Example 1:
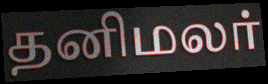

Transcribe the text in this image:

தனிமலர்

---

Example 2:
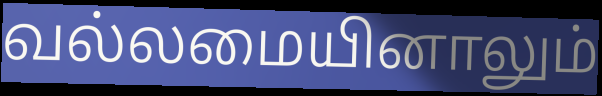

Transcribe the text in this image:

வல்லமையினாலும்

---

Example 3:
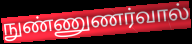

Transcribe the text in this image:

நுண்ணுணர்வால்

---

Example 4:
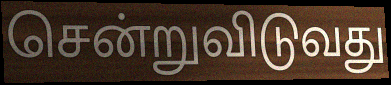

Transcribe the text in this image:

சென்றுவிடுவது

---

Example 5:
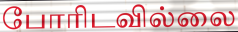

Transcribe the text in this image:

போரிடவில்லை